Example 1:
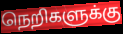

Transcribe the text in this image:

நெறிகளுக்கு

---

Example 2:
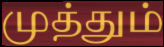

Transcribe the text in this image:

முத்தும்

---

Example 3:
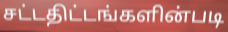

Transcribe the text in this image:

சட்டதிட்டங்களின்படி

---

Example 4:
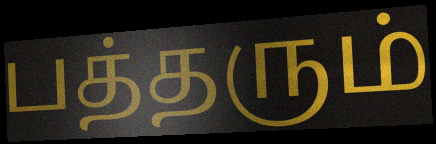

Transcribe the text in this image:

பத்தரும்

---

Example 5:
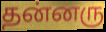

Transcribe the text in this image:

தன்னரு